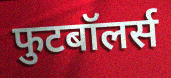
फुटबॉलर्स